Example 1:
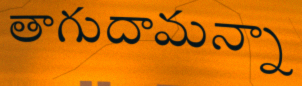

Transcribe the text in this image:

తాగుదామన్నా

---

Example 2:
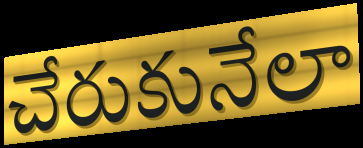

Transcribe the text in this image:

చేరుకునేలా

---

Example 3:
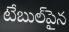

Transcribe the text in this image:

టేబుల్‌పైన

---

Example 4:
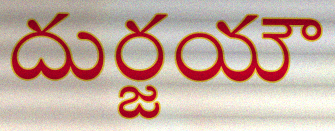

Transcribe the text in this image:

దుర్జయౌ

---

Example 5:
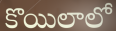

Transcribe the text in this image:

కొయిలాలో